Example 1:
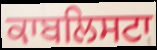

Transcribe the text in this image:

ਕਾਬਲਿਸਟਾ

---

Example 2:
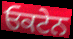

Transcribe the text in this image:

ਓਕਟੇਨ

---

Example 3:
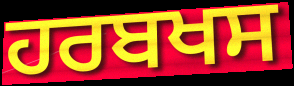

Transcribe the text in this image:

ਹਰਬਖਸ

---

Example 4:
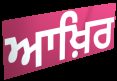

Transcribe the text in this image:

ਆਖ਼ਿਰ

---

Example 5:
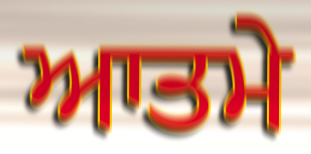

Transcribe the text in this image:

ਆਤਮੇ